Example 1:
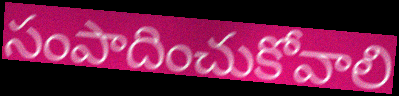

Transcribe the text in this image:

సంపాదించుకోవాలి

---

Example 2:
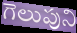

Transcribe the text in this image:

గెలుపుని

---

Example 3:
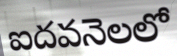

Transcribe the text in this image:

ఐదవనెలలో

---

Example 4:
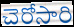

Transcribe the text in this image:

చెరోసారి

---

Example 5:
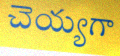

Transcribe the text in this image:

చెయ్యగా